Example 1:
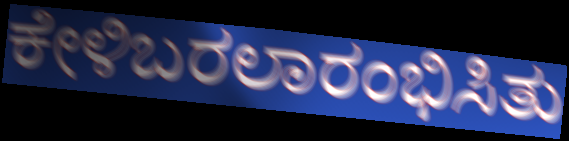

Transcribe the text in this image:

ಕೇಳಿಬರಲಾರಂಭಿಸಿತು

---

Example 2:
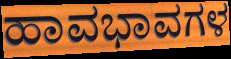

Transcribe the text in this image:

ಹಾವಭಾವಗಳ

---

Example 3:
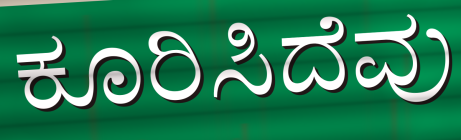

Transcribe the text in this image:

ಕೂರಿಸಿದೆವು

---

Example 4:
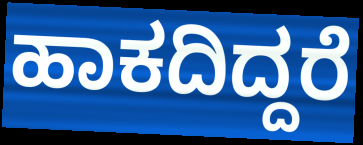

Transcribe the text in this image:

ಹಾಕದಿದ್ದರೆ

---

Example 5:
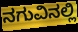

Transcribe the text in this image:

ನಗುವಿನಲ್ಲಿ